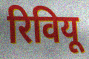
रिवियू